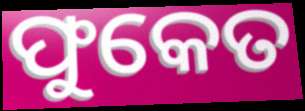
ଫୁକେତ